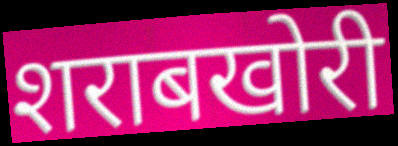
शराबखोरी